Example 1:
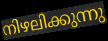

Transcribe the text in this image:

നിഴലിക്കുന്നു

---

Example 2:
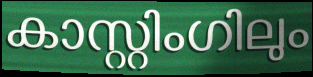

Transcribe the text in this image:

കാസ്റ്റിംഗിലും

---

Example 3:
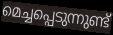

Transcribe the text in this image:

മെച്ചപ്പെടുന്നുണ്ട്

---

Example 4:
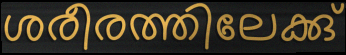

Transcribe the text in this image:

ശരീരത്തിലേക്കു്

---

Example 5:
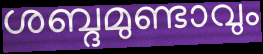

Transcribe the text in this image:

ശബ്ദമുണ്ടാവും